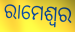
ରାମେଶ୍ୱର